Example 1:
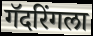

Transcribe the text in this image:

गॅदरिंगला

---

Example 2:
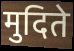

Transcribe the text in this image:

मुदिते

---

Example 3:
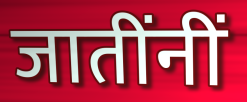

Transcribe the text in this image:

जातींनीं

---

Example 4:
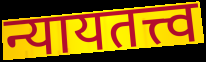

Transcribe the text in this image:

न्यायतत्त्व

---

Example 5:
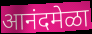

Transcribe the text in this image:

आनंदमेळा